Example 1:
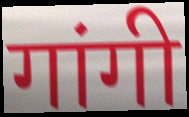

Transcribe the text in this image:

गांगी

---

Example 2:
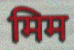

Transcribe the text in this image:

मिम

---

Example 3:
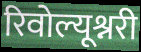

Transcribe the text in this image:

रिवोल्यूश्नरी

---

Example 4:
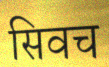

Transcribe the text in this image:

सिवच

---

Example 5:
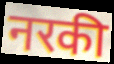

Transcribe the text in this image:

नरकी